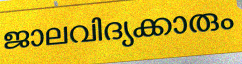
ജാലവിദ്യക്കാരും